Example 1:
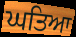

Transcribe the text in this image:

ਘਤਿਆ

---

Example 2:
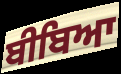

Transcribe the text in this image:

ਬੀਬਿਆ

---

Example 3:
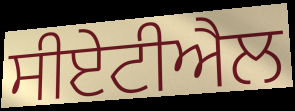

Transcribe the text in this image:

ਸੀਏਟੀਐਲ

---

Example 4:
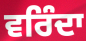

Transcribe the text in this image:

ਵਰਿੰਦਾ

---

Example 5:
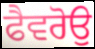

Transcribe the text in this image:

ਫੈਵਰੋਉ